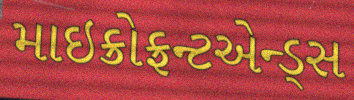
માઇક્રોફ્રન્ટએન્ડ્સ